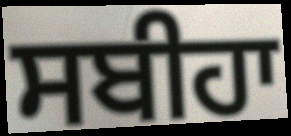
ਸਬੀਹਾ